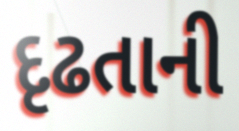
દૃઢતાની